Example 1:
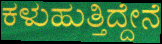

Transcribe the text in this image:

ಕಳುಹುತ್ತಿದ್ದೇನೆ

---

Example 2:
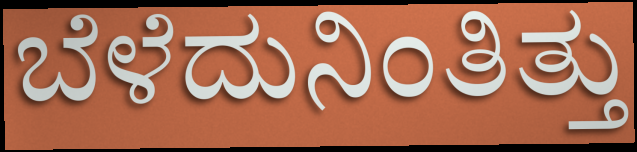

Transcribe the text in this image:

ಬೆಳೆದುನಿಂತಿತ್ತು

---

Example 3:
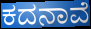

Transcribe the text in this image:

ಕದನಾವೆ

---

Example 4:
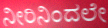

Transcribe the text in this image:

ನೀರಿನಿಂದಲೇ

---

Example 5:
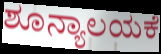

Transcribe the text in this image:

ಶೂನ್ಯಾಲಯಕೆ